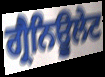
ਗ੍ਰੈਨਿਊਲੇਟ